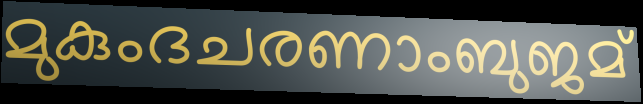
മുകുംദചരണാംബുജമ്